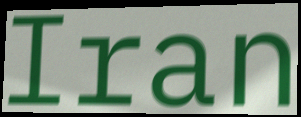
Iran